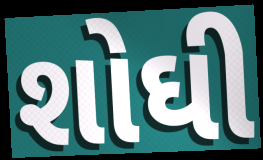
શોઘી